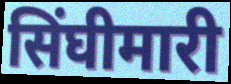
सिंघीमारी